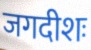
जगदीशः